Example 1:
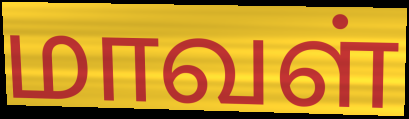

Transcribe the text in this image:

மாவள்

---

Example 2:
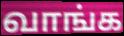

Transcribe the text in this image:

வாங்க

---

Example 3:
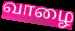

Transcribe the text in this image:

வாழை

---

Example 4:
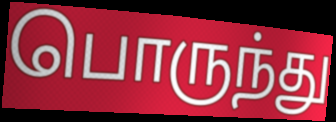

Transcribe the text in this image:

பொருந்து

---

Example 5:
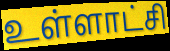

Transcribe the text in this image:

உள்ளாட்சி